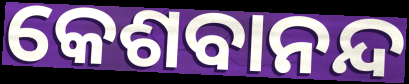
କେଶବାନନ୍ଦ